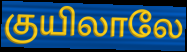
குயிலாலே